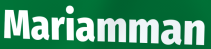
Mariamman